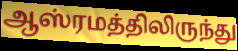
ஆஸ்ரமத்திலிருந்து